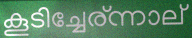
കൂടിച്ചേര്ന്നാല്